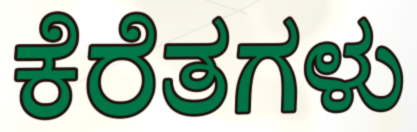
ಕೆರೆತಗಳು